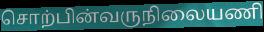
சொற்பின்வருநிலையணி